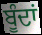
ਬੂੰਦਾਂ